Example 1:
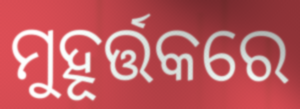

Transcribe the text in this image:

ମୁହୂର୍ତ୍ତକରେ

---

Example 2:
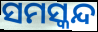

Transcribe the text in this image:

ସମସ୍କନ୍ଦ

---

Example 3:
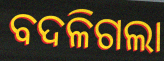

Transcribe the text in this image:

ବଦଳିଗଲା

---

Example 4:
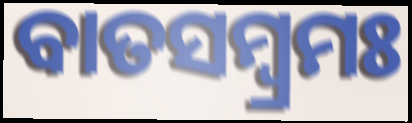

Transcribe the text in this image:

ବାତସମ୍ବ୍ରମଃ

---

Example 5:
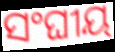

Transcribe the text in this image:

ସଂଘୀୟ